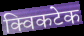
क्विकटेक